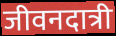
जीवनदात्री